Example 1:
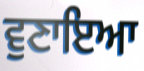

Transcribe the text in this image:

ਵੁਣਾਇਆ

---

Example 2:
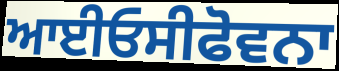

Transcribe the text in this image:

ਆਈਓਸੀਫੋਵਨਾ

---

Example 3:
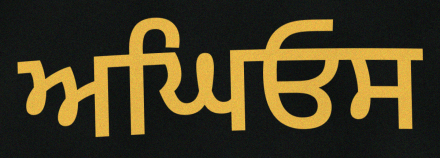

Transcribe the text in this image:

ਅਘਿਓਸ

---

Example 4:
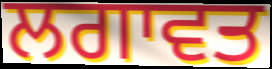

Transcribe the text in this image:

ਲਗਾਵਤ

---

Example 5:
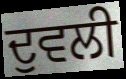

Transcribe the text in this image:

ਦੁਵਲੀ